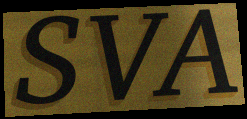
SVA